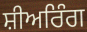
ਸ਼ੀਅਰਿੰਗ